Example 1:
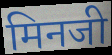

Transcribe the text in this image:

मिनजी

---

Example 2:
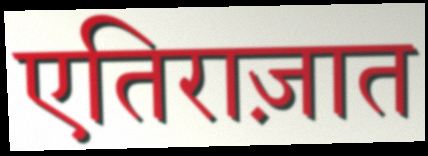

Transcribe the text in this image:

एतिराज़ात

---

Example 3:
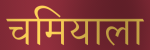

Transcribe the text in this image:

चमियाला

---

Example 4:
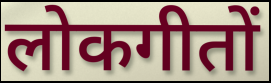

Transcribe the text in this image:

लोकगीतों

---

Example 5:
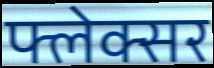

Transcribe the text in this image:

फ्लेक्सर